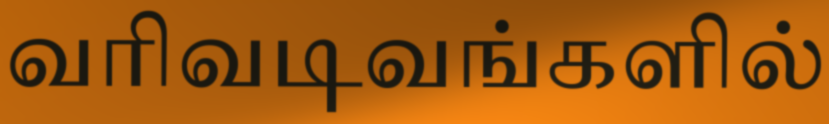
வரிவடிவங்களில்